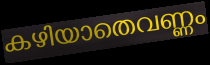
കഴിയാതെവണ്ണം